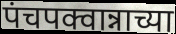
पंचपक्वान्नाच्या